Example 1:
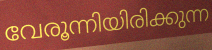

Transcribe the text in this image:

വേരൂന്നിയിരിക്കുന്ന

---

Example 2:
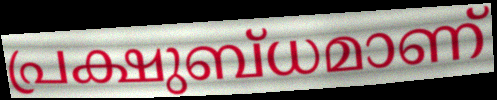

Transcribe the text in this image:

പ്രക്ഷുബ്ധമാണ്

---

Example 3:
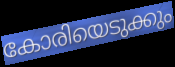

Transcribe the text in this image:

കോരിയെടുക്കും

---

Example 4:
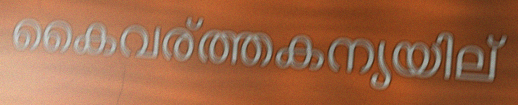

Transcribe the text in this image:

കൈവര്ത്തകന്യയില്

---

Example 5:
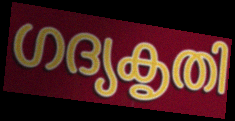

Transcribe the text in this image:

ഗദ്യകൃതി